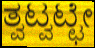
ತ್ವಟ್ವಟ್ಟೇ